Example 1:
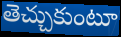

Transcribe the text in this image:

తెచ్చుకుంటూ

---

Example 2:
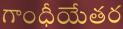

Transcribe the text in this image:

గాంధీయేతర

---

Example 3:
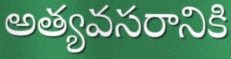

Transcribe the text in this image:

అత్యవసరానికి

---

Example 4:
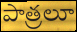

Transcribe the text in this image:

పాత్రలూ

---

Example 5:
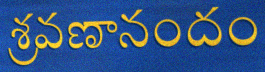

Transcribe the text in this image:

శ్రవణానందం